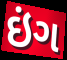
ઇંગ